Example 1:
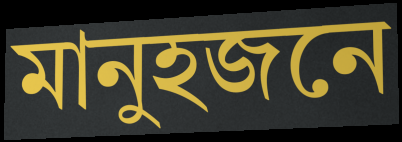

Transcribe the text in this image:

মানুহজনে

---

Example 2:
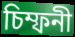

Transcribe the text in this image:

চিম্ফনী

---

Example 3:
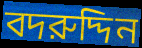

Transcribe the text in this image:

বদৰুদ্দিন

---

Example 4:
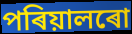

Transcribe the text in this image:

পৰিয়ালৰো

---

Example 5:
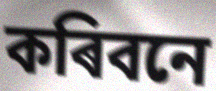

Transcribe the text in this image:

কৰিবনে